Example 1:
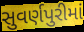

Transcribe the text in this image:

સુવર્ણપુરીમાં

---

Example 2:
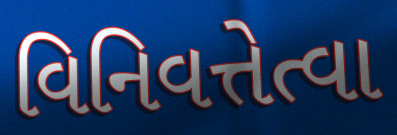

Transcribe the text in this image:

વિનિવત્તેત્વા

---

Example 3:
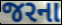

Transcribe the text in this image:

જરના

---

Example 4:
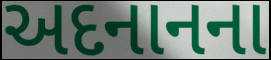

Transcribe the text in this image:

અદનાનના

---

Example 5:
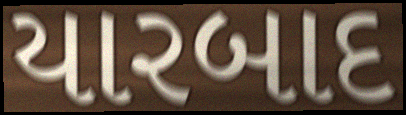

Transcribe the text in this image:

યારબાદ